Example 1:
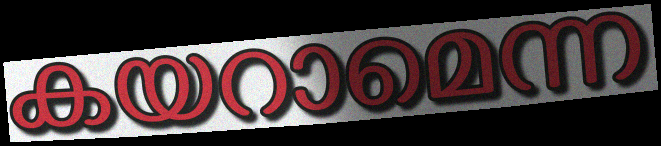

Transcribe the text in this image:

കയറാമെന്ന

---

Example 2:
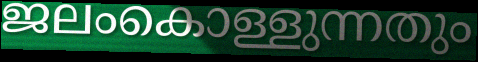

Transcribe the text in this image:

ജലംകൊള്ളുന്നതും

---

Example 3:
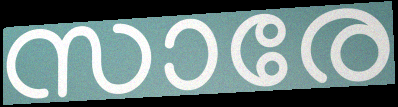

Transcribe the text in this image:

സാരേ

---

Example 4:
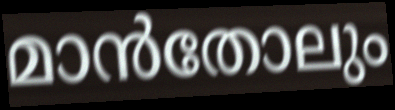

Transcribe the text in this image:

മാൻതോലും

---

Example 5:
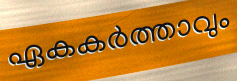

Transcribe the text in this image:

ഏകകർത്താവും